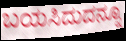
ಬಯಸಿದುದನ್ನೂ